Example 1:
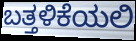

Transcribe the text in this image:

ಬತ್ತಳಿಕೆಯಲಿ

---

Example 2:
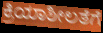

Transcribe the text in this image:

ಕ್ರಿಯಾಶೀಲತೆಗೆ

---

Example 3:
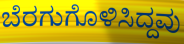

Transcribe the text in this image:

ಬೆರಗುಗೊಳಿಸಿದ್ದವು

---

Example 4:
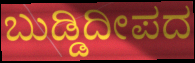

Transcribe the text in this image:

ಬುಡ್ಡಿದೀಪದ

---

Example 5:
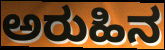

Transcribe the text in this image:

ಅರುಹಿನ